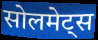
सोलमेट्स